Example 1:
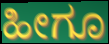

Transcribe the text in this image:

ಹೀಗೂ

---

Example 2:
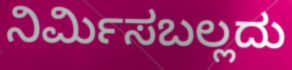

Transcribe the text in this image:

ನಿರ್ಮಿಸಬಲ್ಲದು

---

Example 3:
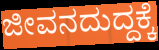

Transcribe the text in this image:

ಜೀವನದುದ್ದಕ್ಕೆ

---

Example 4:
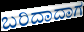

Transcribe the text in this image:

ಬರಿದಾದಾಗ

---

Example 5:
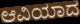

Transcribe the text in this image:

ಆವಿಯಾದ